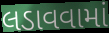
લડાવવામાં